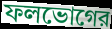
ফলভোগের